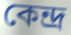
কেন্দ্ৰ